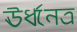
ঊর্ধনেত্র